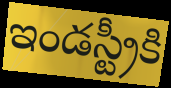
ఇండస్ట్రీకి